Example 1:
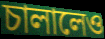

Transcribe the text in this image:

চালালেও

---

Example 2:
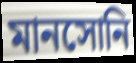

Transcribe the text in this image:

মানসোনি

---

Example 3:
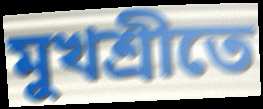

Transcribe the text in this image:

মুখশ্রীতে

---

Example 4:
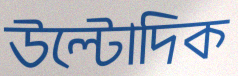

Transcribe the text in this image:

উল্টোদিক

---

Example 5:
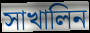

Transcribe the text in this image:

সাখালিন